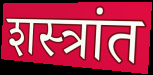
शस्त्रांत